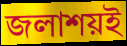
জলাশয়ই